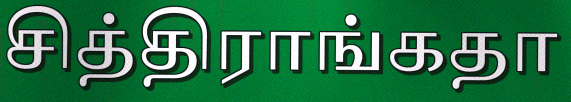
சித்திராங்கதா